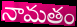
నామతం